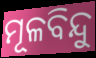
ମୂଳବିନ୍ଦୁ